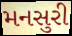
મનસુરી